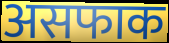
असफाक